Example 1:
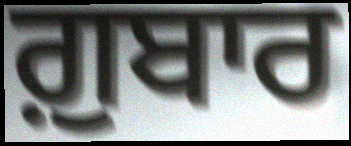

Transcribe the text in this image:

ਗ਼ੁਬਾਰ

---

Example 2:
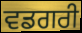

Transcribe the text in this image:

ਵਡਗਰੀ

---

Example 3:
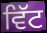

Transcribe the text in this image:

ਵਿੱਟ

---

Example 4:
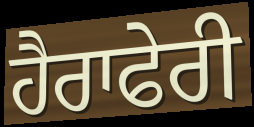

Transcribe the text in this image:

ਹੈਰਾਫੇਰੀ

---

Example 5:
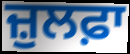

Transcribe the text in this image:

ਜ਼ੁਲਫ਼ਾ